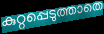
കുറ്റപ്പെടുത്താതെ